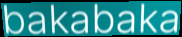
bakabaka